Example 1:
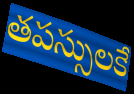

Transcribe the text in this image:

తపస్సులకే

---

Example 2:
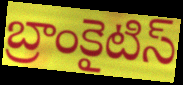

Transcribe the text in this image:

బ్రాంకైటిస్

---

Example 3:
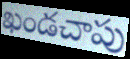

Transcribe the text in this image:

ఖండచాపు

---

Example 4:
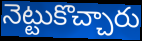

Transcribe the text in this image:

నెట్టుకొచ్చారు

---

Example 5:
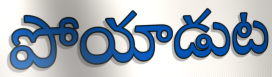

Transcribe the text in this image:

పోయాడుట